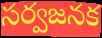
సర్వజనక